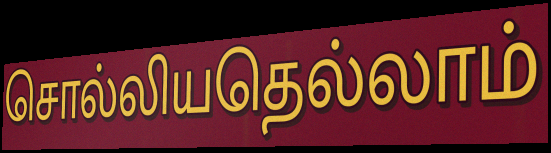
சொல்லியதெல்லாம்